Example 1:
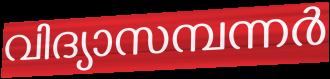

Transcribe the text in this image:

വിദ്യാസമ്പന്നർ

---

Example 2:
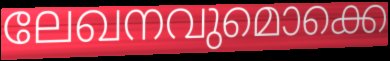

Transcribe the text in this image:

ലേഖനവുമൊക്കെ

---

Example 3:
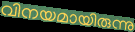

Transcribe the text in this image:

വിനയമായിരുന്നു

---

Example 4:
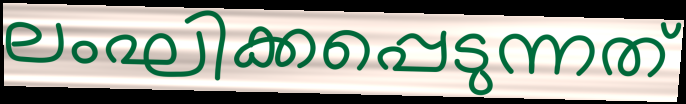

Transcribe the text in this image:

ലംഘിക്കപ്പെടുന്നത്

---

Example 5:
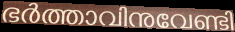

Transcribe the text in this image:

ഭർത്താവിനുവേണ്ടി